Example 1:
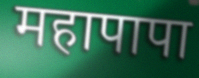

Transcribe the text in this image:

महापापा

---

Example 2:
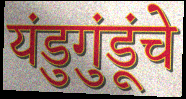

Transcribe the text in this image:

यंडुगुंडूंचे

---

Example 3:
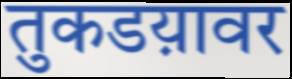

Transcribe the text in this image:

तुकडय़ावर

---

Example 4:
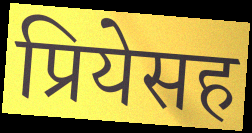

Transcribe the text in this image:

प्रियेसह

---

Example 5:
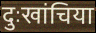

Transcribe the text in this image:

दुःखांचिया